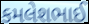
કમલેશભાઈ